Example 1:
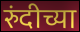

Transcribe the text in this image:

रुंदीच्या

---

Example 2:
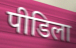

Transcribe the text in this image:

पीडिला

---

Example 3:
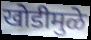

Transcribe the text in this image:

खोडीमुळे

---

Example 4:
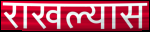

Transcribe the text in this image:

राखल्यास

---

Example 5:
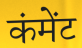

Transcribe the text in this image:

कंमेंट